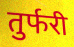
तुर्फरी